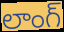
లాంగ్